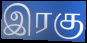
இரகு